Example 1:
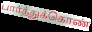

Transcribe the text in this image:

பார்த்துக்கொண்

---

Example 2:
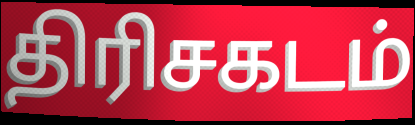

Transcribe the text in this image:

திரிசகடம்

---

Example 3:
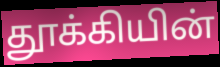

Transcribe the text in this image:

தூக்கியின்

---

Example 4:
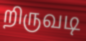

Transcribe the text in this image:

றிருவடி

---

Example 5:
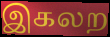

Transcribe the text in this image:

இகலற